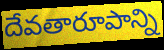
దేవతారూపాన్ని